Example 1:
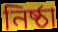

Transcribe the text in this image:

নিষ্ঠা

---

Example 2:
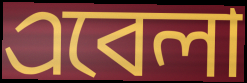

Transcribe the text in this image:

এবেলা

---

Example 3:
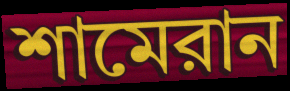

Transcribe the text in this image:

শামেরান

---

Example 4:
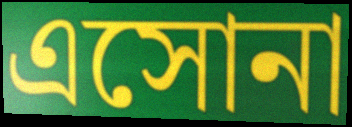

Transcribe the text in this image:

এসোনা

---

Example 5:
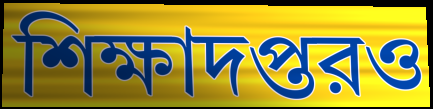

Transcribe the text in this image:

শিক্ষাদপ্তরও